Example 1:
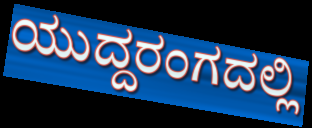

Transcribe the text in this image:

ಯುದ್ದರಂಗದಲ್ಲಿ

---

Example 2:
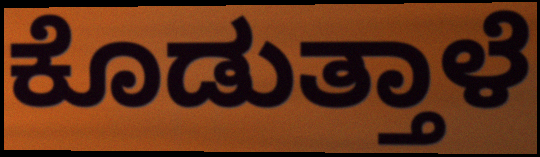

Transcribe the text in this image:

ಕೊಡುತ್ತಾಳೆ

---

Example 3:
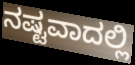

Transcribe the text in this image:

ನಷ್ಟವಾದಲ್ಲಿ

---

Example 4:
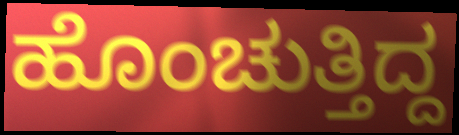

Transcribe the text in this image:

ಹೊಂಚುತ್ತಿದ್ದ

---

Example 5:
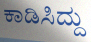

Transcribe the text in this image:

ಕಾಡಿಸಿದ್ದು